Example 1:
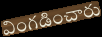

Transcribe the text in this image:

వింగడించారు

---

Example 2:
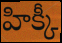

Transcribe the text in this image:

హిక్కీ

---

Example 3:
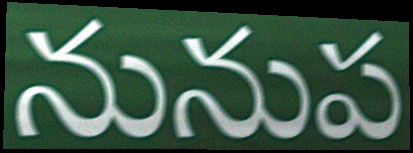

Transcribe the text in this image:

నునుప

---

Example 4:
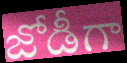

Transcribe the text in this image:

జోడీగా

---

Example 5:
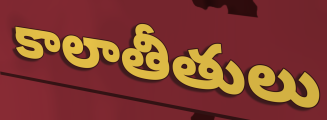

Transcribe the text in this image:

కాలాతీతులు